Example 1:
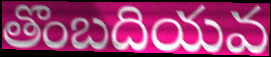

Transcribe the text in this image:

తొంబదియవ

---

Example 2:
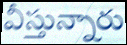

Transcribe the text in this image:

వీస్తున్నారు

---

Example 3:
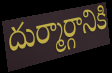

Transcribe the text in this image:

దుర్మార్గానికి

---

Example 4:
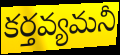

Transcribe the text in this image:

కర్తవ్యమనీ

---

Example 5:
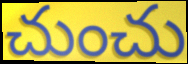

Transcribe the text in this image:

చుంచు